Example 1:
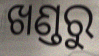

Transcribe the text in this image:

ଖଣ୍ଡରୁ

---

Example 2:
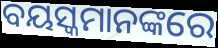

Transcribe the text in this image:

ବୟସ୍କମାନଙ୍କରେ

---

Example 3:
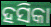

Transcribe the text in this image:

ହସିକା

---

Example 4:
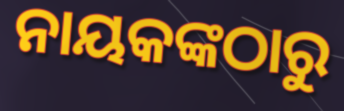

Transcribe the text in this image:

ନାୟକଙ୍କଠାରୁ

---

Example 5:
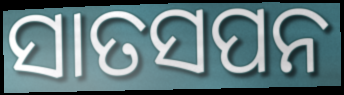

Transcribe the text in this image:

ସାତସପନ